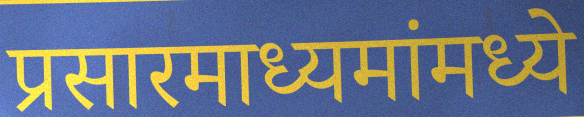
प्रसारमाध्यमांमध्ये